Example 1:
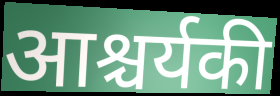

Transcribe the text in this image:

आश्चर्यकी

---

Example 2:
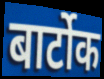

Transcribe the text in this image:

बार्टोक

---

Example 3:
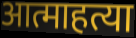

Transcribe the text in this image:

आत्माहत्या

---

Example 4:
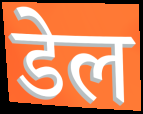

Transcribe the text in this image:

डेल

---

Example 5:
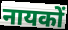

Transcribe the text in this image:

नायकों